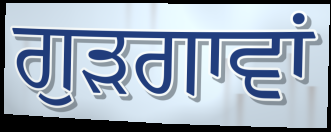
ਗੁੜਗਾਵਾਂ